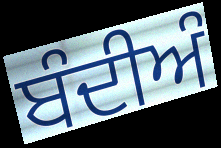
ਬੰਦੀਅੰ